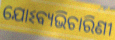
ଯୋଽବ୍ୟଭିଚାରିଣୀ